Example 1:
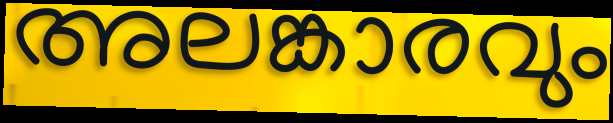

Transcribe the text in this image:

അലങ്കാരവും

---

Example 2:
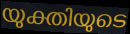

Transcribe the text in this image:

യുക്തിയുടെ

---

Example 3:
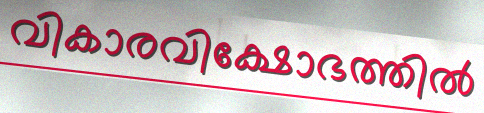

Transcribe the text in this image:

വികാരവിക്ഷോഭത്തിൽ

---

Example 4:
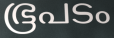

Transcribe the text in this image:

ഭൂപടം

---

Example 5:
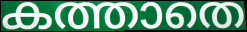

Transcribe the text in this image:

കത്താതെ